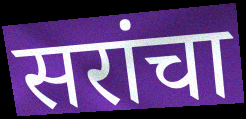
सरांचा